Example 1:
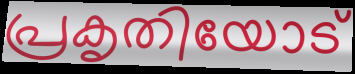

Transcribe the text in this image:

പ്രകൃതിയോട്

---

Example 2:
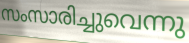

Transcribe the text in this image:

സംസാരിച്ചുവെന്നു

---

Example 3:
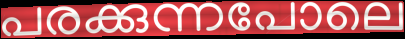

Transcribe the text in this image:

പരക്കുന്നപോലെ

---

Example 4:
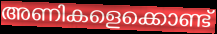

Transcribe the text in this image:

അണികളെക്കൊണ്ട്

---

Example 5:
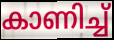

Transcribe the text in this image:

കാണിച്ച്